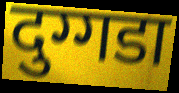
दुग्गडा